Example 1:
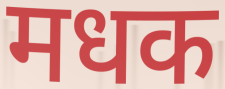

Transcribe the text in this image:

मधक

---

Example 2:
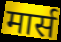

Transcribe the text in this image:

मार्स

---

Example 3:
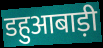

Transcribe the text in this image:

डहुआबाड़ी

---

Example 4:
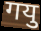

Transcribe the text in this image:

गयु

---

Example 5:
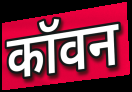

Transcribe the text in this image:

कॉवन